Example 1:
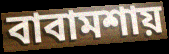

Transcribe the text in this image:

বাবামশায়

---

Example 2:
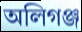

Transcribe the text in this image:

অলিগঞ্জ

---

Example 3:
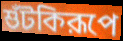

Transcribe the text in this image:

শুঁটকিরূপে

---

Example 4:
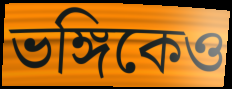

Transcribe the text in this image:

ভঙ্গিকেও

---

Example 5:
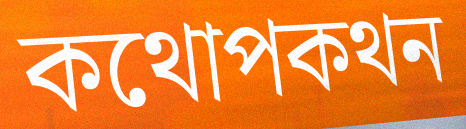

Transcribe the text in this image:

কথোপকথন